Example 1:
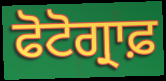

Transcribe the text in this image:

ਫੋਟੋਗ੍ਰਾਫ਼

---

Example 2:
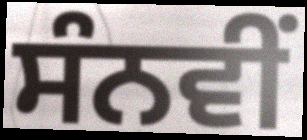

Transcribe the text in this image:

ਸੰਨਵੀਂ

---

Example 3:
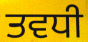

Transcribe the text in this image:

ਤਵਧੀ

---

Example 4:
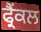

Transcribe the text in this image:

ਫ੍ਰੈਂਕਲ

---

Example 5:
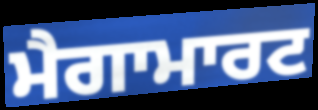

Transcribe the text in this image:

ਮੈਗਾਮਾਰਟ